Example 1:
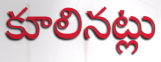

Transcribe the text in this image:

కూలినట్లు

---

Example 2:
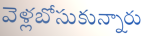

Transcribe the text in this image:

వెళ్లబోసుకున్నారు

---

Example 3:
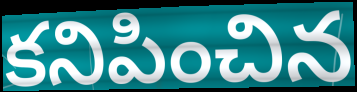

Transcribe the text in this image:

కనిపించిన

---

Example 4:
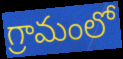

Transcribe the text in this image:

గ్రామంలో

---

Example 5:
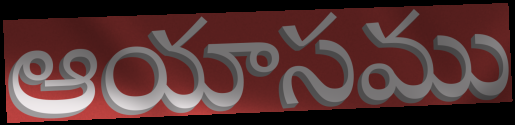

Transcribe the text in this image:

ఆయాసము